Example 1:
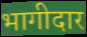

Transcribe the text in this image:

भागीदार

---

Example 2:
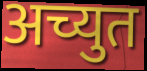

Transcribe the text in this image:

अच्‍युत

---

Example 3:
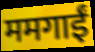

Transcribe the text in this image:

ममगाईं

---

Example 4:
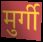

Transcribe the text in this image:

मुर्गी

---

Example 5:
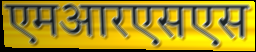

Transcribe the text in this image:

एमआरएसएस